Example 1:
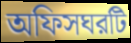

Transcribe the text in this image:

অফিসঘরটি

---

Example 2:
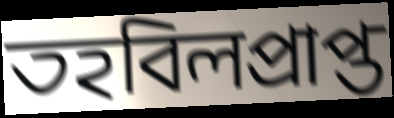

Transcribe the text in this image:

তহবিলপ্রাপ্ত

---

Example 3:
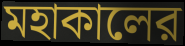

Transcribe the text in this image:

মহাকালের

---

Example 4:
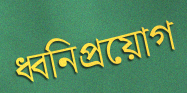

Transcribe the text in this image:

ধ্বনিপ্রয়োগ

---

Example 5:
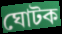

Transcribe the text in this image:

ঘোটক